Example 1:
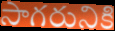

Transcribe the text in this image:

సాగరునికి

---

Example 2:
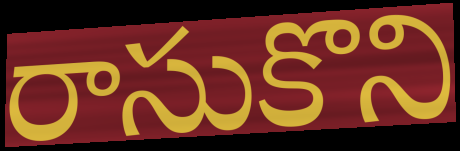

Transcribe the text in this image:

రాసుకొని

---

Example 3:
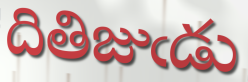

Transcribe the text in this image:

దితిజుఁడు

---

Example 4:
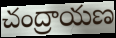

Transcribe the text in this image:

చంద్రాయణ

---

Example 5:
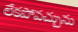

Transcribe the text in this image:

లేకపోవచ్చును